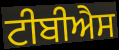
ਟੀਬੀਐਸ